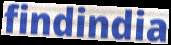
findindia